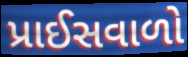
પ્રાઈસવાળો